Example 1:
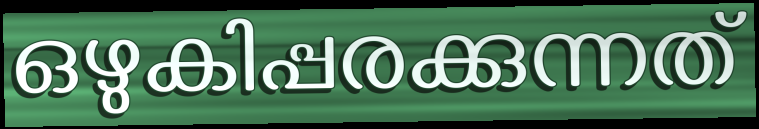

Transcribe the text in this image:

ഒഴുകിപ്പരക്കുന്നത്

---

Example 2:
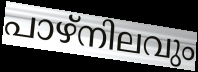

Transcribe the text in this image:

പാഴ്നിലവും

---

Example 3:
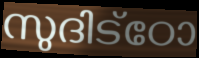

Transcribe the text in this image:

സുദിട്ഠോ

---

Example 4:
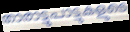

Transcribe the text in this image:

താരാട്ടുപാട്ടുകളുടെ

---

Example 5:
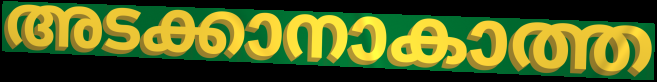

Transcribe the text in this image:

അടക്കാനാകാത്ത